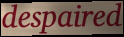
despaired